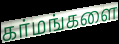
கர்மங்களை